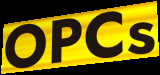
OPCs